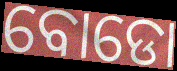
ବୋଡୋ